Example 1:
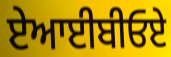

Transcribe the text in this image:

ਏਆਈਬੀਓਏ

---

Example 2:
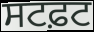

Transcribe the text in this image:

ਸਟਫ਼ਟ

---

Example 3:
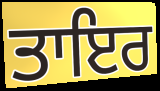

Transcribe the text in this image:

ਤਾਇਰ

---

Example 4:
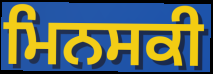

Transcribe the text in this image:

ਮਿਨਸਕੀ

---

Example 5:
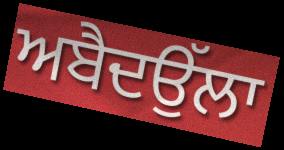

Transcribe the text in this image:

ਅਬੈਦਉੱਲਾ